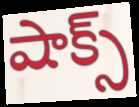
షాక్స్